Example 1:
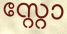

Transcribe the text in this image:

സ്റ്റോ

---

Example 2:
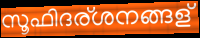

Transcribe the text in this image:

സൂഫിദര്ശനങ്ങള്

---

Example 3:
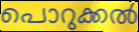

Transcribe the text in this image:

പൊറുക്കൽ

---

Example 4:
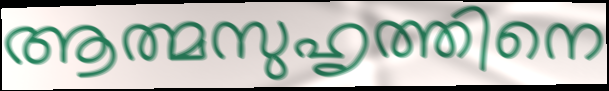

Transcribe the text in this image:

ആത്മസുഹൃത്തിനെ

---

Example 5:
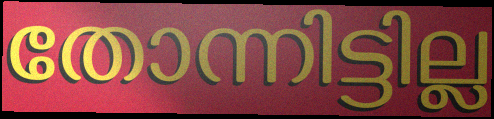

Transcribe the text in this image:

തോന്നിട്ടില്ല